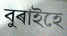
বুৰাইহে